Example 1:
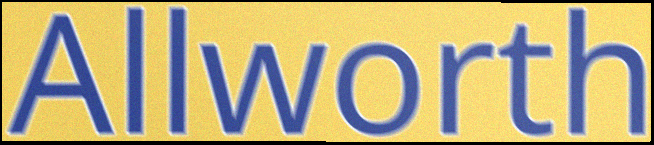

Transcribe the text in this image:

Allworth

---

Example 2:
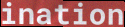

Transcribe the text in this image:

ination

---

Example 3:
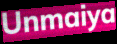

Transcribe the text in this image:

Unmaiya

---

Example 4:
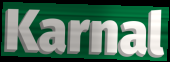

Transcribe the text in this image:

Karnal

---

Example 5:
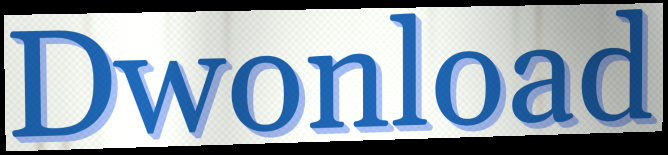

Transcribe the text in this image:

Dwonload